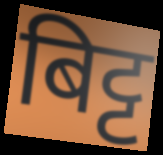
बिट्ट